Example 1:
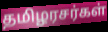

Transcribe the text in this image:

தமிழரசர்கள்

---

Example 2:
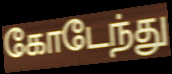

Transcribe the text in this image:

கோடேந்து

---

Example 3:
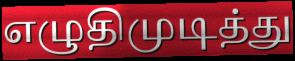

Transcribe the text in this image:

எழுதிமுடித்து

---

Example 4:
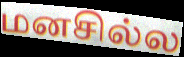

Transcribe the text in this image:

மனசில்ல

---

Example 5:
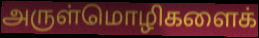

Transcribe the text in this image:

அருள்மொழிகளைக்